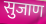
सुजाण